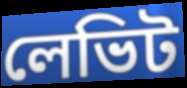
লেভিট